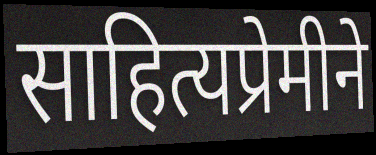
साहित्यप्रेमीने